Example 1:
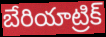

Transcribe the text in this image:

బేరియాట్రిక్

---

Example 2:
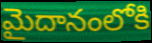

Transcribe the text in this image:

మైదానంలోకి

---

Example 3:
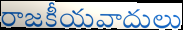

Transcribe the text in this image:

రాజకీయవాదులు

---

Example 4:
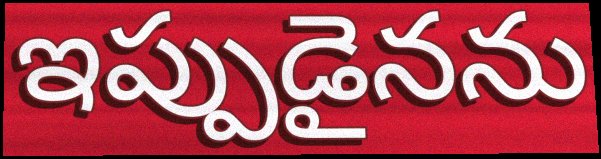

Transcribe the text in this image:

ఇప్పుడైనను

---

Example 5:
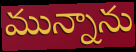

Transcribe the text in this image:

మున్నాను